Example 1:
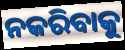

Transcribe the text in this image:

ନକରିବାକୁ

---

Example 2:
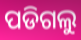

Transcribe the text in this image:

ପଡିଗଲୁ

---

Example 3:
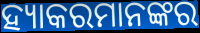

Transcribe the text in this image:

ହ୍ୟାକରମାନଙ୍କର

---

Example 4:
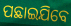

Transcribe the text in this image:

ପଛାଇଯିବେ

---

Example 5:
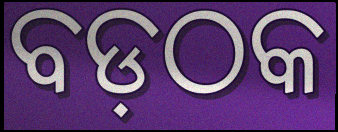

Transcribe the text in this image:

ବଡ଼ଠକ